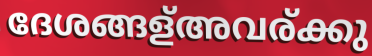
ദേശങ്ങള്അവര്ക്കു